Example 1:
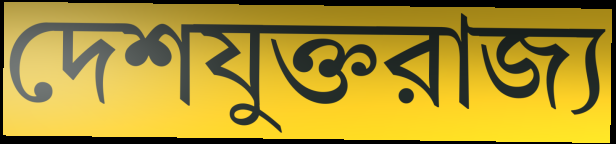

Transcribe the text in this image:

দেশযুক্তরাজ্য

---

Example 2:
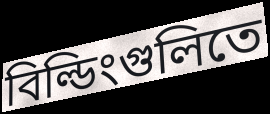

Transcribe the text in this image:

বিল্ডিংগুলিতে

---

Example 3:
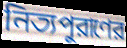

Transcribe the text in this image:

নিত্যপুরাণের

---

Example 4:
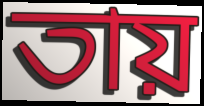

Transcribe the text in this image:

তায়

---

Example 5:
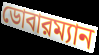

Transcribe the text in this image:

ডোবারম্যান